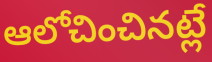
ఆలోచించినట్లే